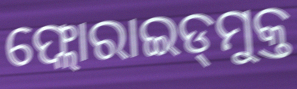
ଫ୍ଲୋରାଇଡ୍‌ମୁକ୍ତ